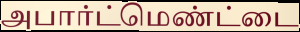
அபார்ட்மெண்ட்டை